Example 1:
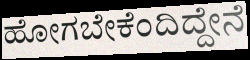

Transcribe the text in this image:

ಹೋಗಬೇಕೆಂದಿದ್ದೇನೆ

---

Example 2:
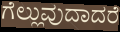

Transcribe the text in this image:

ಗೆಲ್ಲುವುದಾದರೆ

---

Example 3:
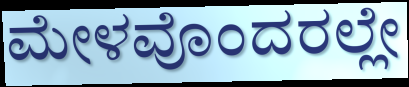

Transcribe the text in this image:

ಮೇಳವೊಂದರಲ್ಲೇ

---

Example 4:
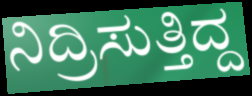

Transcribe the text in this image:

ನಿದ್ರಿಸುತ್ತಿದ್ದ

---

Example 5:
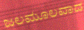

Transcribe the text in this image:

ಜಲಮೂಲವಾದ